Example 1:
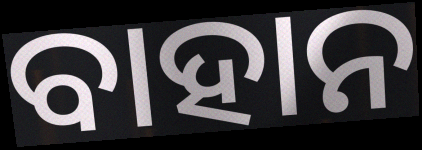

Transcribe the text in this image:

ବାହାନ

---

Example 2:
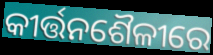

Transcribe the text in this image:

କୀର୍ତ୍ତନଶୈଳୀରେ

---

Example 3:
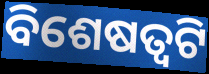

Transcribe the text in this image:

ବିଶେଷତ୍ୱଟି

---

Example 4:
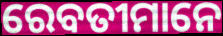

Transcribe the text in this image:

ରେବତୀମାନେ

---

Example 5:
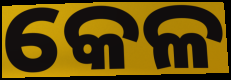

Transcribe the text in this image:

କେଳ